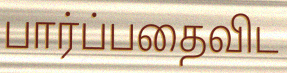
பார்ப்பதைவிட